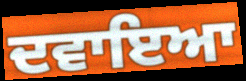
ਦਵਾਇਆ